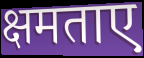
क्षमताए